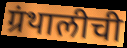
ग्रंथालीची